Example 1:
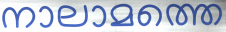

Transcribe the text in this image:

നാലാമത്തെ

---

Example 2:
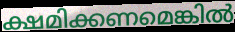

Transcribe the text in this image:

ക്ഷമിക്കണമെങ്കിൽ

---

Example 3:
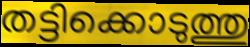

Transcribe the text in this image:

തട്ടിക്കൊടുത്തു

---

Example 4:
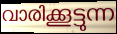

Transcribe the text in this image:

വാരിക്കൂട്ടുന്ന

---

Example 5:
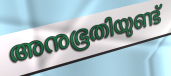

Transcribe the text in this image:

അനുഭൂതിയുണ്ട്